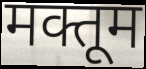
मक्तूम